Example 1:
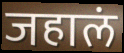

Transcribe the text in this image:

जहालं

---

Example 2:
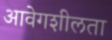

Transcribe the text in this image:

आवेगशीलता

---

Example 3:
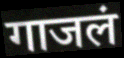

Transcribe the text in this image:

गाजलं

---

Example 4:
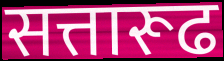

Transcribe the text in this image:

सत्तारूढ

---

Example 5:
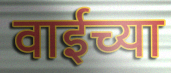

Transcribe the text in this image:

वाईच्या